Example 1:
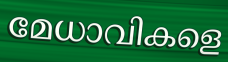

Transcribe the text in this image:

മേധാവികളെ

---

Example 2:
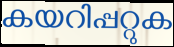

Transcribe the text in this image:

കയറിപ്പറ്റുക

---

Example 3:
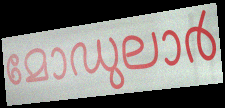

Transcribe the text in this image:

മോഡുലാർ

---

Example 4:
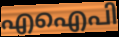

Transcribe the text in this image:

എഐപി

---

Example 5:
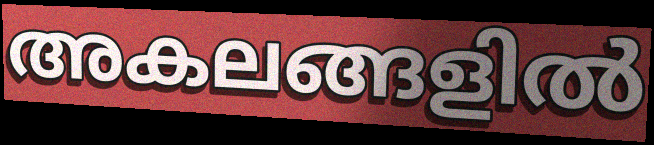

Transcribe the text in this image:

അകലങ്ങളിൽ